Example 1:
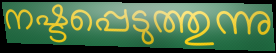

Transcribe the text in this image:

നഷ്ടപ്പെടുത്തുന്നു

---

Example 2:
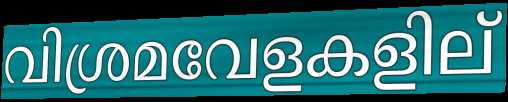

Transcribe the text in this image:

വിശ്രമവേളകളില്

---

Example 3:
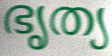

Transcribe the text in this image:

ഭൃത്യ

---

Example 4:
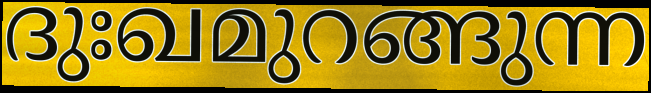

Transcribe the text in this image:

ദുഃഖമുറങ്ങുന്ന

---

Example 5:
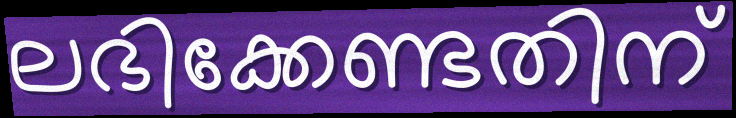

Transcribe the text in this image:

ലഭിക്കേണ്ടതിന്